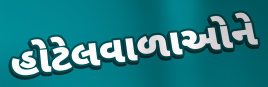
હોટેલવાળાઓને